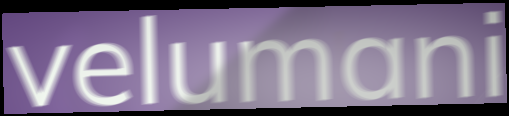
velumani